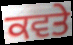
ਕਵਤੇ